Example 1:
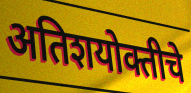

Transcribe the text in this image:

अतिशयोक्तीचे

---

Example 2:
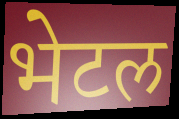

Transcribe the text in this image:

भेटल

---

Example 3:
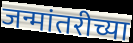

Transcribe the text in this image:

जन्मांतरीच्या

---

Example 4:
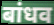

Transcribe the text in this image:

बांधव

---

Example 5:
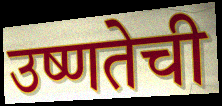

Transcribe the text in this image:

उष्णतेची